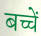
बच्चें